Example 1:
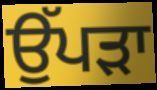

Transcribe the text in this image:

ਉੱਪੜਾ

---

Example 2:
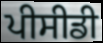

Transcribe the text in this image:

ਪੀਸੀਡੀ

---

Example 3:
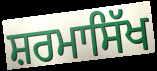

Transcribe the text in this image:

ਸ਼ਰਮਾਸਿੱਖ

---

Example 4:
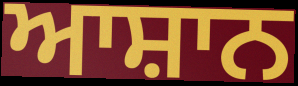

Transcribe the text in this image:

ਆਸ਼ਾਨ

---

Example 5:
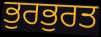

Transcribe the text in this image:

ਭੁਰਭੁਰਤ